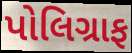
પોલિગ્રાફ